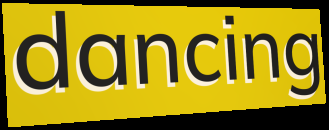
dancing